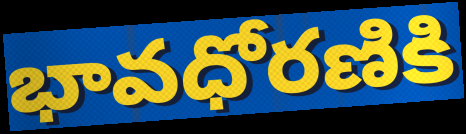
భావధోరణికి